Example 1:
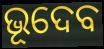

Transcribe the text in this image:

ଭୂଦେବ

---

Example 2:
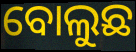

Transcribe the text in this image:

ବୋଲୁଛ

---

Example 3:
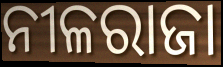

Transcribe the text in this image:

ନୀଳରାଜା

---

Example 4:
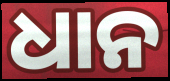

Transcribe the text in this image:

ଧାନ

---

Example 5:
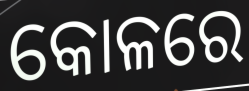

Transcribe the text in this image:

କୋଳରେ